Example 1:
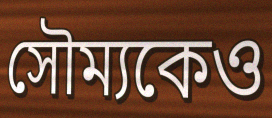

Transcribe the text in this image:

সৌম্যকেও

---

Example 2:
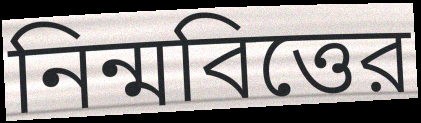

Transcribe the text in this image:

নিন্মবিত্তের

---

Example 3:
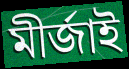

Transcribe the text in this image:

মীর্জাই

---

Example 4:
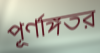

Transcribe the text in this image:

পূর্ণাঙ্গতর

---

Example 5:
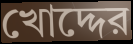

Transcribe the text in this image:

খোদ্দের